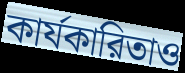
কার্যকারিতাও